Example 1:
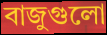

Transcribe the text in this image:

বাজুগুলো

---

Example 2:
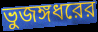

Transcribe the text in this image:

ভুজঙ্গধরের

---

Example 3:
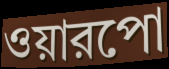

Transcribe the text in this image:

ওয়ারপো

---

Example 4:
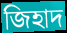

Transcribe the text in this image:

জিহাদ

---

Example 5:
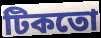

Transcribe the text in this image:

টিকতো